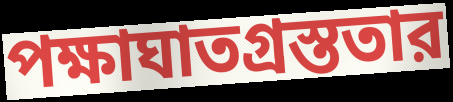
পক্ষাঘাতগ্রস্ততার